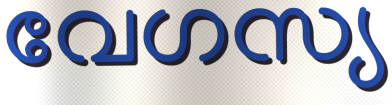
വേഗസ്യ